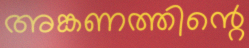
അങ്കണത്തിന്റെ